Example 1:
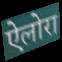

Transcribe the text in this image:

ऐलोरा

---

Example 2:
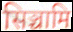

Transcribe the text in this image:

सिञ्चामि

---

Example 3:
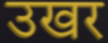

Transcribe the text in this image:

उखर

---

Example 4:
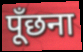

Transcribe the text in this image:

पूँछना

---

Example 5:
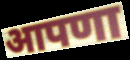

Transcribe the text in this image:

आपणा